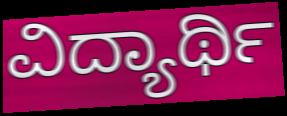
ವಿದ್ಯಾರ್ಥಿ